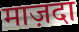
माज़दा